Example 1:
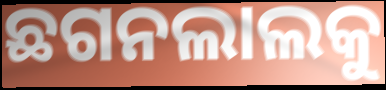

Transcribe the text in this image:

ଛଗନଲାଲକୁ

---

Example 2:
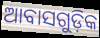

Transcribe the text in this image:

ଆବାସଗୁଡ଼ିକ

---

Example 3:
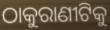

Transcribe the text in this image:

ଠାକୁରାଣୀଟିକୁ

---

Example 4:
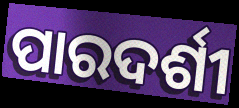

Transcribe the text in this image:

ପାରଦର୍ଶୀ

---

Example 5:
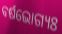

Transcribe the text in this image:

ବର୍ଷଭୋଗ୍ୟଃ